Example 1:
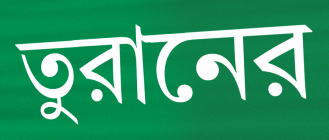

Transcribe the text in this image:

তুরানের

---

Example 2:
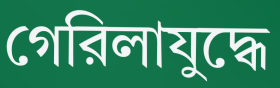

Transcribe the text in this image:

গেরিলাযুদ্ধে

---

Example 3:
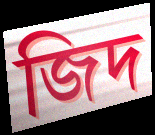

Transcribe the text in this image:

জিদ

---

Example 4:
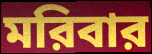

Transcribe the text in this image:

মরিবার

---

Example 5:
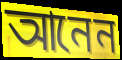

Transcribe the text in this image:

আনেন